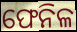
ଫେନିଳ